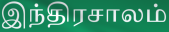
இந்திரசாலம்